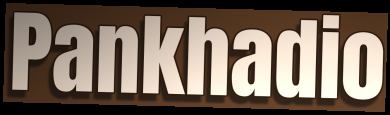
Pankhadio